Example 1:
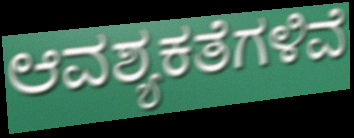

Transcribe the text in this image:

ಆವಶ್ಯಕತೆಗಳಿವೆ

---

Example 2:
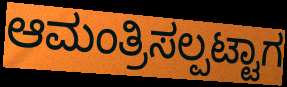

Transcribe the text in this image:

ಆಮಂತ್ರಿಸಲ್ಪಟ್ಟಾಗ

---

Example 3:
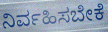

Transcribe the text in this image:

ನಿರ್ವಹಿಸಬೇಕೆ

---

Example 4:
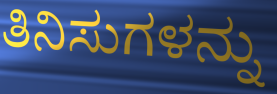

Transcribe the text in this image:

ತಿನಿಸುಗಳನ್ನು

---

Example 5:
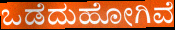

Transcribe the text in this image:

ಒಡೆದುಹೋಗಿವೆ